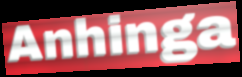
Anhinga